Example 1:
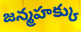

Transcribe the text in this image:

జన్మహక్కు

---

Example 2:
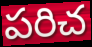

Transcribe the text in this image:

పరిచ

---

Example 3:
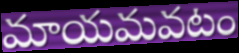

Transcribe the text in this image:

మాయమవటం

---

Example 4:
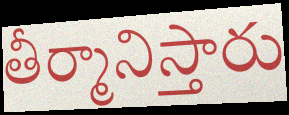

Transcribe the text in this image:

తీర్మానిస్తారు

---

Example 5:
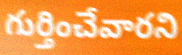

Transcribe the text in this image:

గుర్తించేవారని